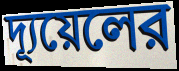
দ্যূয়েলের